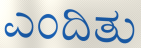
ಎಂದಿತು